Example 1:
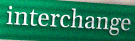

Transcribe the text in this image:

interchange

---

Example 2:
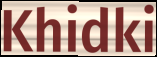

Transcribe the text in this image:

Khidki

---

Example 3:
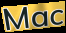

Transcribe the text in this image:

Mac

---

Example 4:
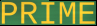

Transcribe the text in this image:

PRIME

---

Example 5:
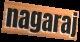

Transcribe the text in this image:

nagaraj